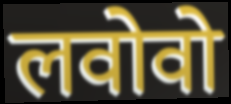
लवोवो